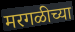
मरगळीच्या